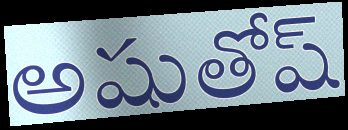
అషుతోష్